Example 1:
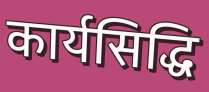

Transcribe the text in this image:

कार्यसिद्धि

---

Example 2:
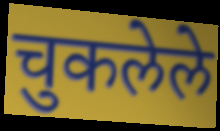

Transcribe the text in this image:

चुकलेले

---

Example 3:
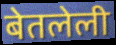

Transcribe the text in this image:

बेतलेली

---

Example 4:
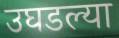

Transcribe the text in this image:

उघडल्या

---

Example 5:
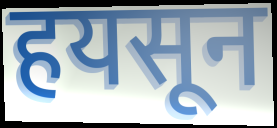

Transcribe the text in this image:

हयसून